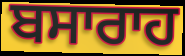
ਬਸਾਰਾਹ